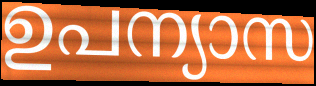
ഉപന്യാസ